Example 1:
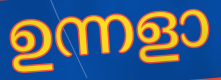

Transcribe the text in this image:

ഉന്നളാ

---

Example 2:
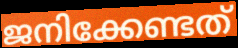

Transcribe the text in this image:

ജനിക്കേണ്ടത്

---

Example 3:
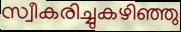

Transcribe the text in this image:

സ്വീകരിച്ചുകഴിഞ്ഞു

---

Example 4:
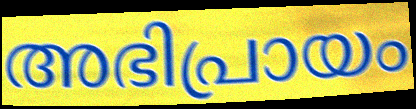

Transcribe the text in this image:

അഭിപ്രായം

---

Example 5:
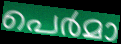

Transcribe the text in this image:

പെർമാ